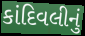
કાંદિવલીનું